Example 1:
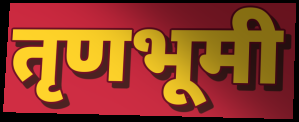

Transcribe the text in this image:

तृणभूमी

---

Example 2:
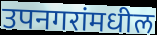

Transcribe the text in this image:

उपनगरांमधील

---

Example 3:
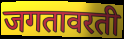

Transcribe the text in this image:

जगतावरती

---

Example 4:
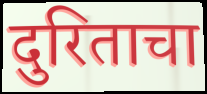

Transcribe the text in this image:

दुरिताचा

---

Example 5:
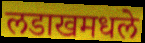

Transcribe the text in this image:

लडाखमधले